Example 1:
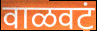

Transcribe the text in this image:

वाळवटं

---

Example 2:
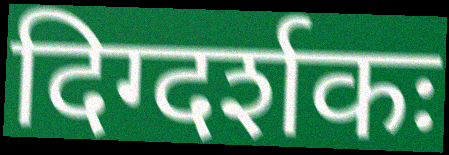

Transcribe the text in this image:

दिग्दर्शकः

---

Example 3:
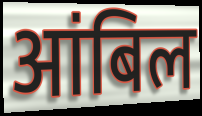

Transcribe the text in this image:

आंबिल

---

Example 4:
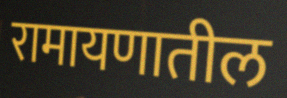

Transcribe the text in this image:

रामायणातील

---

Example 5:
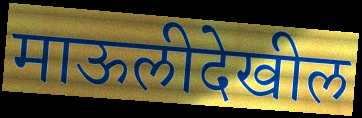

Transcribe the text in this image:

माऊलीदेखील